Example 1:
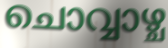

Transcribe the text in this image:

ചൊവ്വാഴ്ച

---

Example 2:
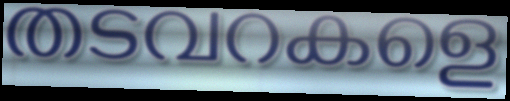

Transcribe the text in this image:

തടവറകളെ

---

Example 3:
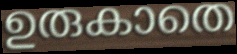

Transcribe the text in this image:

ഉരുകാതെ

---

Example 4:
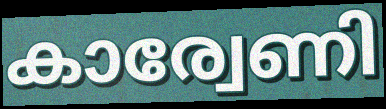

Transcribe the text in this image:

കാര്വേണി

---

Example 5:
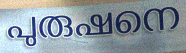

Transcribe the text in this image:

പുരുഷനെ